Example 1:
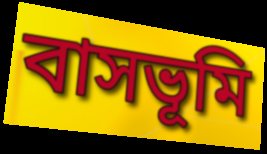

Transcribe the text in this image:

বাসভূমি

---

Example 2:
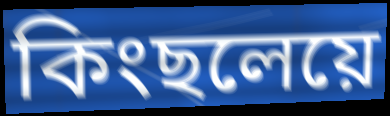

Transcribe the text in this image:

কিংছলেয়ে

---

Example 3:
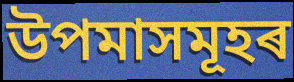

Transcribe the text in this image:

উপমাসমূহৰ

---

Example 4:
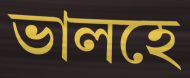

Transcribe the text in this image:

ভালহে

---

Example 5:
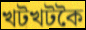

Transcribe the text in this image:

খটখটকৈ